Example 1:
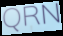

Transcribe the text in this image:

QRN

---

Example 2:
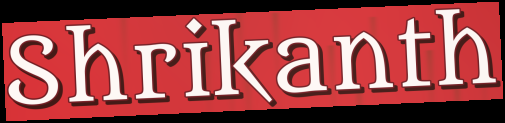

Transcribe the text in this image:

Shrikanth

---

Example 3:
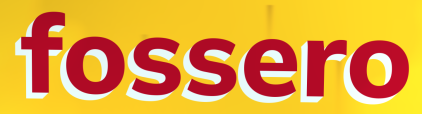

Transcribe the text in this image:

fossero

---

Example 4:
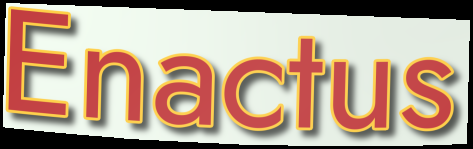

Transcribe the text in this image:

Enactus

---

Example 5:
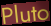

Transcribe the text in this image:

Pluto